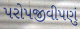
પરોપજીવીપણું